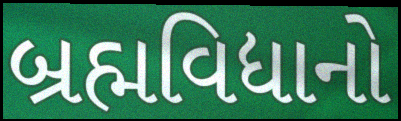
બ્રહ્મવિદ્યાનો